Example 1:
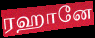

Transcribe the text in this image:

ரஹானே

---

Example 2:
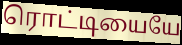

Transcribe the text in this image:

ரொட்டியையே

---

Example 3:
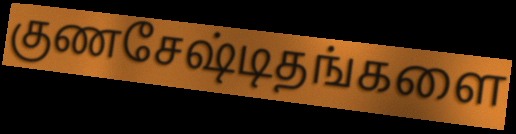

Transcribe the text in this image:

குணசேஷ்டிதங்களை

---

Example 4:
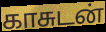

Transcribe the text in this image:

காசுடன்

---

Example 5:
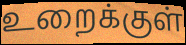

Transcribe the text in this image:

உறைக்குள்